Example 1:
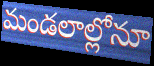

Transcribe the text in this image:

మండలాల్లోనూ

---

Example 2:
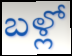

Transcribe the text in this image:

బళ్లో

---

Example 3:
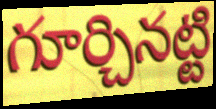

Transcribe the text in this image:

గూర్చినట్టి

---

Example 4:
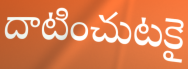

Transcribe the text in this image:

దాటించుటకై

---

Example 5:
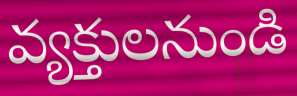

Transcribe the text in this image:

వ్యక్తులనుండి